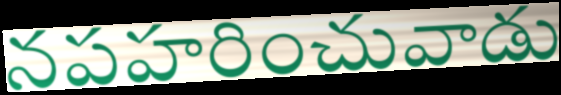
నపహరించువాడు